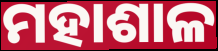
ମହାଶାଳ